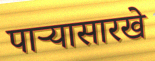
पाऱ्यासारखे